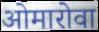
ओमारोवा